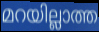
മറയില്ലാത്ത